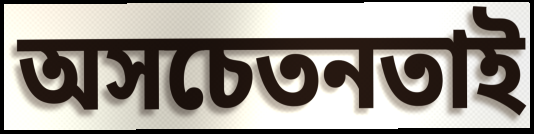
অসচেতনতাই